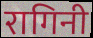
रागिनी